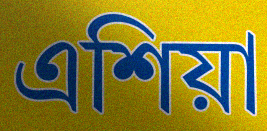
এশিয়া